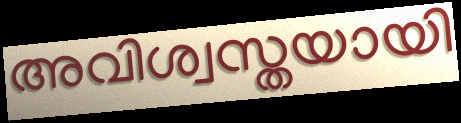
അവിശ്വസ്തയായി